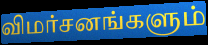
விமர்சனங்களும்